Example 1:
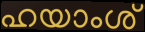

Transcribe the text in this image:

ഹയാംശ്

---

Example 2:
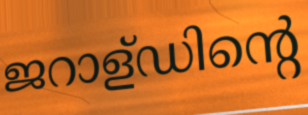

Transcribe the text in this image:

ജറാള്ഡിന്റെ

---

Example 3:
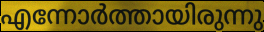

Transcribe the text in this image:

എന്നോർത്തായിരുന്നു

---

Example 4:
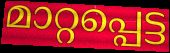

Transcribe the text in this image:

മാറ്റപ്പെട്ട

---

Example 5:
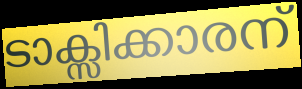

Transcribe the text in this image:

ടാക്സിക്കാരന്